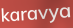
karavya